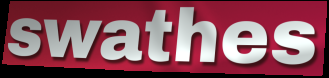
swathes